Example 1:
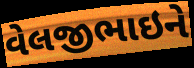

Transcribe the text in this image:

વેલજીભાઇને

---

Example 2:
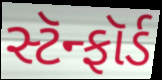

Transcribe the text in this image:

સ્ટૅન્ફૉર્ડ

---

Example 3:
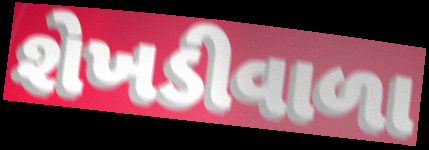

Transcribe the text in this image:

શેખડીવાળા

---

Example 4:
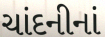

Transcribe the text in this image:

ચાંદનીનાં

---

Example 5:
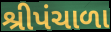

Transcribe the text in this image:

શ્રીપંચાળા